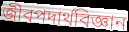
জীবপদার্থবিজ্ঞান